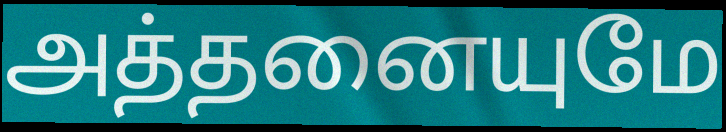
அத்தனையுமே